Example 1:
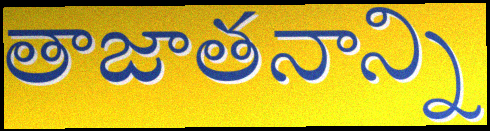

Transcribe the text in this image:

తాజాతనాన్ని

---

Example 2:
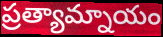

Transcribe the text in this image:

ప్రత్యామ్నాయం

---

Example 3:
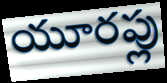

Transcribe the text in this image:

యూరప్లు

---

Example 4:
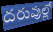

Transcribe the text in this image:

దరువుల్లో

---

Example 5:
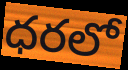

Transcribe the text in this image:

ధరలో